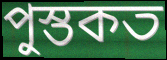
পুস্তকত